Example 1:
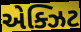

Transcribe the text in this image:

એક્ઝિટ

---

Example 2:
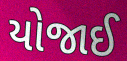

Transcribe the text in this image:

યોજાઈ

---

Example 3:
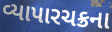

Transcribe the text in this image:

વ્યાપારચક્રના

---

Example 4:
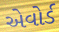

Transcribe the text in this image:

એવોર્ડ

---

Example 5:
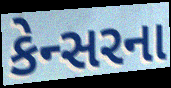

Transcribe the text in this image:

કેન્સરના